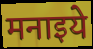
मनाइये